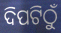
ଦିପଟିଠୁଁ